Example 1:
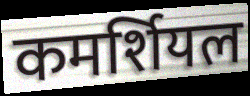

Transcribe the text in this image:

कमर्शियल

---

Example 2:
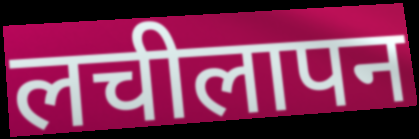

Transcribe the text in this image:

लचीलापन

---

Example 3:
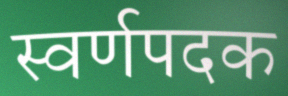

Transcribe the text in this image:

स्वर्णपदक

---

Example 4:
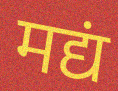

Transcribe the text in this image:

मद्यं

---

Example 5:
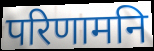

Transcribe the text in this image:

परिणामनि